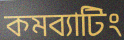
কমব্যাটিং